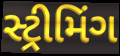
સ્ટ્રીમિંગ